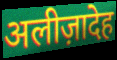
अलीज़ादेह